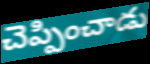
చెప్పించాడు